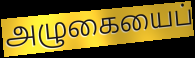
அழுகையைப்